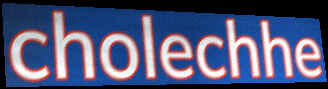
cholechhe